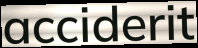
acciderit